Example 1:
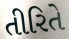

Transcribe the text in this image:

તીરિતે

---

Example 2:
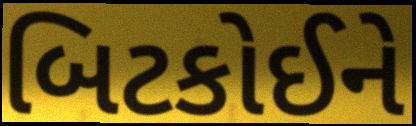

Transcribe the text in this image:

બિટકોઈને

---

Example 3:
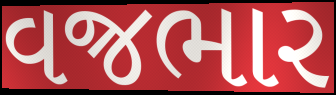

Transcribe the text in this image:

વજ્રભાર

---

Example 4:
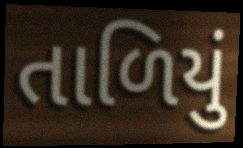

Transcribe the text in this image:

તાળિયું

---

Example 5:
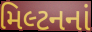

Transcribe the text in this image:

મિલ્ટનનાં